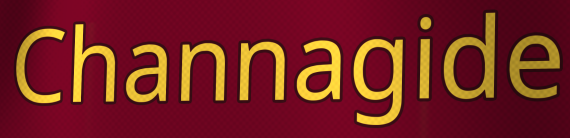
Channagide